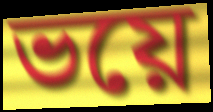
ভয়ে